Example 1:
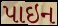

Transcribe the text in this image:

પાઇન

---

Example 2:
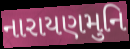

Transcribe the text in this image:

નારાયણમુનિ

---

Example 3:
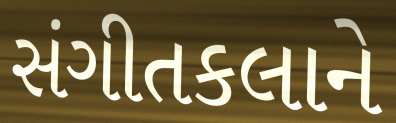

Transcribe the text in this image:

સંગીતકલાને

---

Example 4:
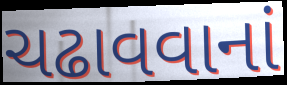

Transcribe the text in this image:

ચઢાવવાનાં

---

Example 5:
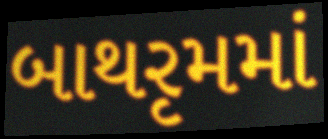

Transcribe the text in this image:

બાથરૃમમાં